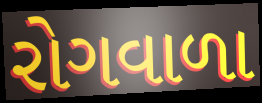
રોગવાળા